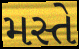
મસ્તે